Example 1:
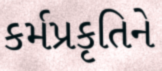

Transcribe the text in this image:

કર્મપ્રકૃતિને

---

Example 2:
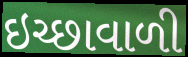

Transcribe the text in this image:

ઇચ્છાવાળી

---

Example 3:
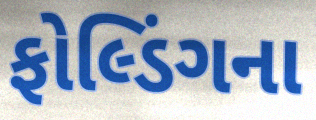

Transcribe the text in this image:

ફોલ્ડિંગના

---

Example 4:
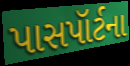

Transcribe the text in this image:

પાસપૉર્ટના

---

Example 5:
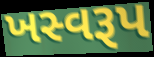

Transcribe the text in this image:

ખસ્વરૂપ